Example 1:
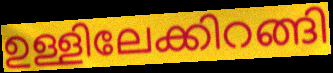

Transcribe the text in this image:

ഉള്ളിലേക്കിറങ്ങി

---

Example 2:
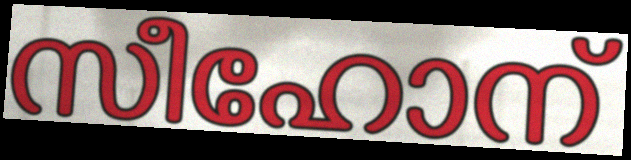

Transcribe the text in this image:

സീഹോന്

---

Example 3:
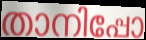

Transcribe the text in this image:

താനിപ്പോ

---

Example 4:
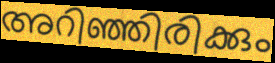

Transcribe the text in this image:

അറിഞ്ഞിരിക്കും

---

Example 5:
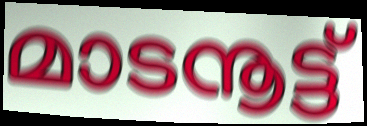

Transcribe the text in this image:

മാടനൂട്ട്